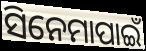
ସିନେମାପାଇଁ